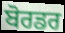
ਬੋਰਡਰ